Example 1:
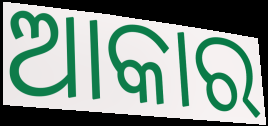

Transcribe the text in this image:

ଆକାର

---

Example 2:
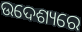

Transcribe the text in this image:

ଉଦେଶ୍ୟରେ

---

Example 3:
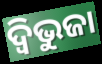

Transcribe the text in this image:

ଦ୍ବିଭୁଜା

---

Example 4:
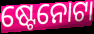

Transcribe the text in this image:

ଷ୍ଟେନୋଟା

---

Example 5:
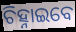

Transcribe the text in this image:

ଚିହ୍ନାଇବେ